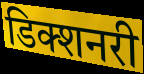
डिक्‍शनरी